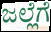
ಜಲ್ಲೆಗೆ